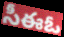
సీఈఓ